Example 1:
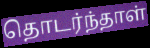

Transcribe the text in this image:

தொடர்ந்தாள்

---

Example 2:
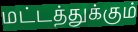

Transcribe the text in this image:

மட்டத்துக்கும்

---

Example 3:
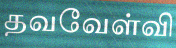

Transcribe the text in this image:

தவவேள்வி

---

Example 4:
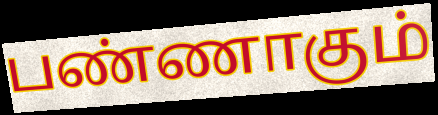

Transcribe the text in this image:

பண்ணாகும்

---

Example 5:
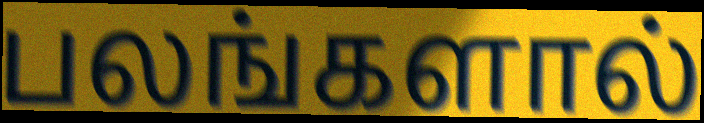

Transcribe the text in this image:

பலங்களால்